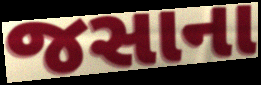
જસાના